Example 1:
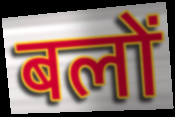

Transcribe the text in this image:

बलों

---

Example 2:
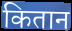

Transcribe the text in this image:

कितान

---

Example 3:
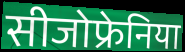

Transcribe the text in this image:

सीजोफ्रेनिया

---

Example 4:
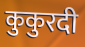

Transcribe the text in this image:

कुकुरदी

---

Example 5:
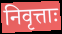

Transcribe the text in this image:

निवृत्ताः